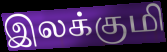
இலக்குமி